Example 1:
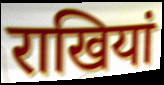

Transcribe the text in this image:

राखियां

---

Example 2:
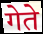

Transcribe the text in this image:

गेते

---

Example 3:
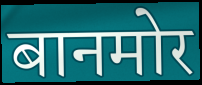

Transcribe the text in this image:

बानमोर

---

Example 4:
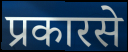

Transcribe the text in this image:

प्रकारसे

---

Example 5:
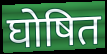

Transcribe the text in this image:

घोषित